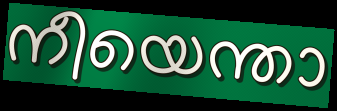
നീയെന്താ